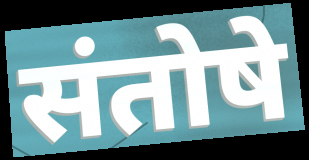
संतोषे